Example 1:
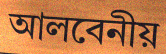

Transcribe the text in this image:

আলবেনীয়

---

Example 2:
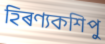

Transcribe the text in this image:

হিৰণ্যকশিপু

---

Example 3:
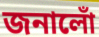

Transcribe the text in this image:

জনালোঁ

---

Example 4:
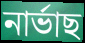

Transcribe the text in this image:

নাৰ্ভাছ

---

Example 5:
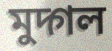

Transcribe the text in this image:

মুদ্গল